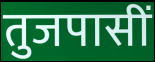
तुजपासीं